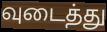
வுடைத்து